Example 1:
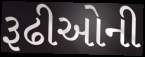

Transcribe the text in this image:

રૂઢીઓની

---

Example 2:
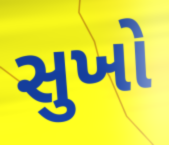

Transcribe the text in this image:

સુખો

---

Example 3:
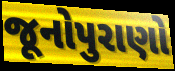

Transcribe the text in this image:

જૂનોપુરાણો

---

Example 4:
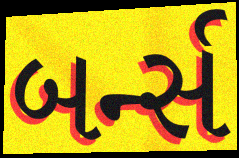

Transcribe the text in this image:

બર્ન્સ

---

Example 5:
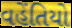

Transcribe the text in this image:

વહેંતિયો